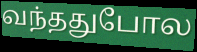
வந்ததுபோல